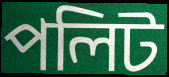
পলিট